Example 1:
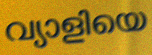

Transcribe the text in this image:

വ്യാളിയെ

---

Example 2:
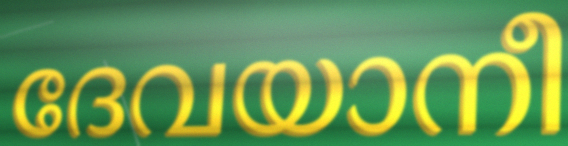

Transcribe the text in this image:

ദേവയാനീ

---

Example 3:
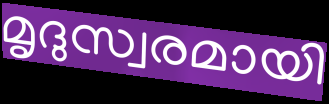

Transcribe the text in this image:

മൃദുസ്വരമായി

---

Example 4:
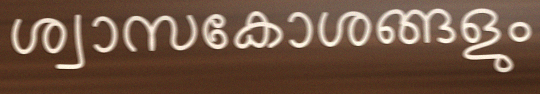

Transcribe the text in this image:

ശ്വാസകോശങ്ങളും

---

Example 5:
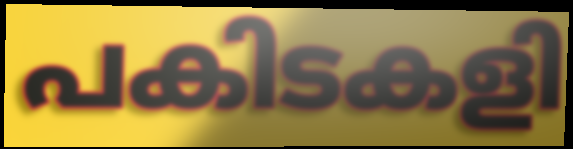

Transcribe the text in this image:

പകിടകളി